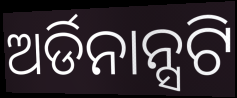
ଅର୍ଡିନାନ୍ସଟି